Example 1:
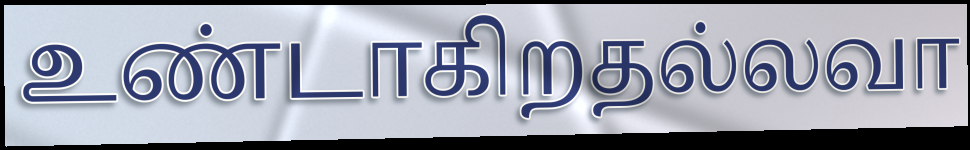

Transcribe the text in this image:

உண்டாகிறதல்லவா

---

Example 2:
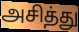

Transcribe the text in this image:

அசித்து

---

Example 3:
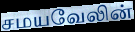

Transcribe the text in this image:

சமயவேலின்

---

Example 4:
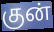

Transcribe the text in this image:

குன்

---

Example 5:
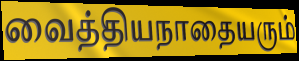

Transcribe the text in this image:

வைத்தியநாதையரும்